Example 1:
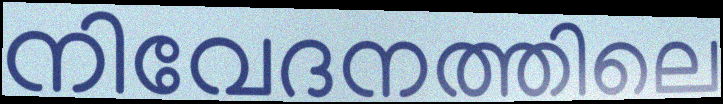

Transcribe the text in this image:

നിവേദനത്തിലെ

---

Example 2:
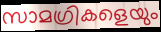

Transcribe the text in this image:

സാമഗ്രികളെയും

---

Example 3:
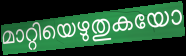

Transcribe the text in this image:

മാറ്റിയെഴുതുകയോ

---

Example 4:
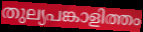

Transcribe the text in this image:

തുല്യപങ്കാളിത്തം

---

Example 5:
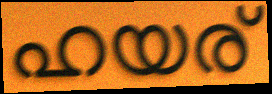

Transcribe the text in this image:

ഹയര്